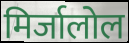
मिर्जालोल